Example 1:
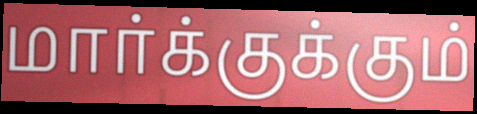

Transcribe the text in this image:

மார்க்குக்கும்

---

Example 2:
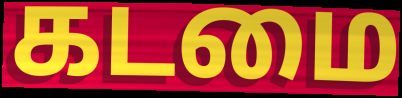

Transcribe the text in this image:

கடமை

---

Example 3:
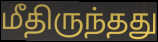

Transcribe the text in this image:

மீதிருந்தது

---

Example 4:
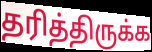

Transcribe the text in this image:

தரித்திருக்க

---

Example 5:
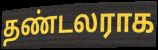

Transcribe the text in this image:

தண்டலராக